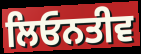
ਲਿਓਨਤੀਵ